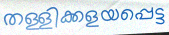
തള്ളിക്കളയപ്പെട്ട